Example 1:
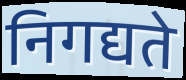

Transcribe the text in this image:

निगद्यते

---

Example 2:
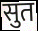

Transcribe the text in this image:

सुत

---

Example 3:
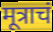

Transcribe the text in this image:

मूत्राचं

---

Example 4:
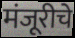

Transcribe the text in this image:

मंजूरीचे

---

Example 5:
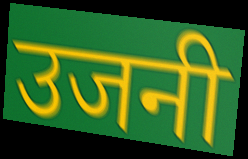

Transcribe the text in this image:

उजनी